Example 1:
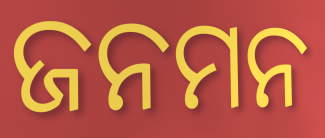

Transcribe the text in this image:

ଜନମନ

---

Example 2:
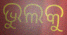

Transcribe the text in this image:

ଭୁଲକୁ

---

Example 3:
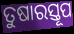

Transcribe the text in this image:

ତୁଷାରସ୍ତୂପ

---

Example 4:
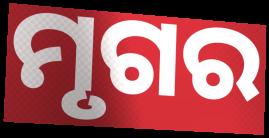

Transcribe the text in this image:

ମୃଗର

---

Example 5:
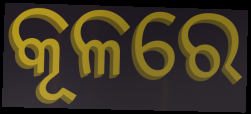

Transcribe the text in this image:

କୂଳରେ